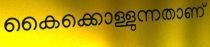
കൈക്കൊള്ളുന്നതാണ്